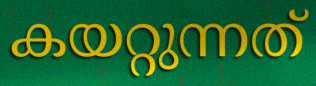
കയറ്റുന്നത്